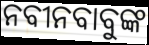
ନବୀନବାବୁଙ୍କ